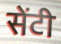
सेंटी